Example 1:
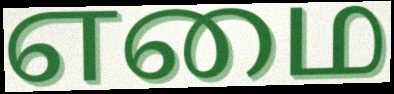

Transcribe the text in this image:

எமை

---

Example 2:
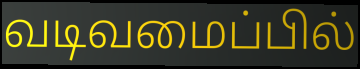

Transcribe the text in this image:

வடிவமைப்பில்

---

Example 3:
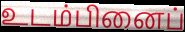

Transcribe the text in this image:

உடம்பினைப்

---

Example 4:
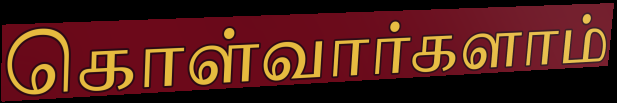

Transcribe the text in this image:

கொள்வார்களாம்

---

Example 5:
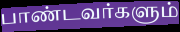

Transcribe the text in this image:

பாண்டவர்களும்